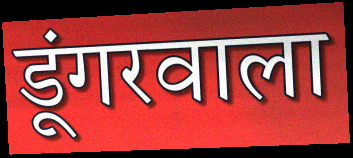
डूंगरवाला